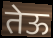
तेऊ